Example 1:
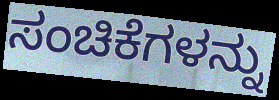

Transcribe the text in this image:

ಸಂಚಿಕೆಗಳನ್ನು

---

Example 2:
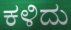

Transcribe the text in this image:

ಕಳಿದು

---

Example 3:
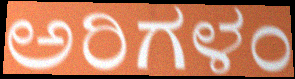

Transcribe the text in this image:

ಅರಿಗಳಂ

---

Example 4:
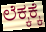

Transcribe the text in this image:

ಲೆಕ್ಕಕ್ಕೆ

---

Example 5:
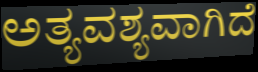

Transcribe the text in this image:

ಅತ್ಯವಶ್ಯವಾಗಿದೆ